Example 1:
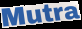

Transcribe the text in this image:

Mutra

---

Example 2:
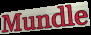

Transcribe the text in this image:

Mundle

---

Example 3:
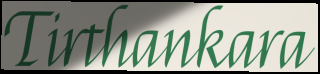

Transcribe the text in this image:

Tirthankara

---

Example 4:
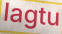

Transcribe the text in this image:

lagtu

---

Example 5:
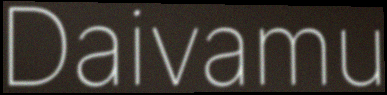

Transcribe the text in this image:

Daivamu